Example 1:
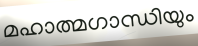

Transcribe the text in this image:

മഹാത്മഗാന്ധിയും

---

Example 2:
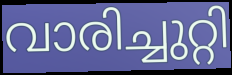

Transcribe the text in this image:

വാരിച്ചുറ്റി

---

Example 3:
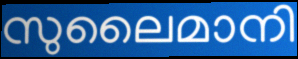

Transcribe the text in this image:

സുലൈമാനി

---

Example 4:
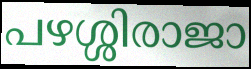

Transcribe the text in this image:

പഴശ്ശിരാജാ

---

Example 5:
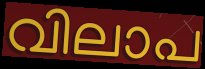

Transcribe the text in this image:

വിലാപ